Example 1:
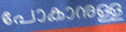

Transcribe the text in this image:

പോകാനുള്ള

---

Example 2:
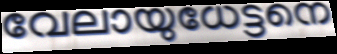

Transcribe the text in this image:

വേലായുധേട്ടനെ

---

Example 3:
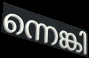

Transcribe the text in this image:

ന്നെങ്കി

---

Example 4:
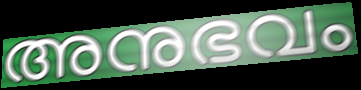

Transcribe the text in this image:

അനുഭവം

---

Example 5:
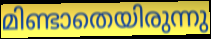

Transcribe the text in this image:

മിണ്ടാതെയിരുന്നു